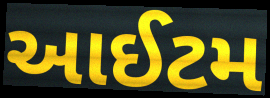
આઈટમ